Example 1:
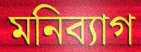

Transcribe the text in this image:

মনিব্যাগ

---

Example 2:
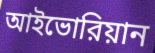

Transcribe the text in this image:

আইভোরিয়ান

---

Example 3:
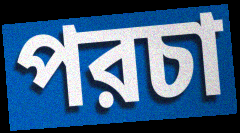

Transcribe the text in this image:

পরচা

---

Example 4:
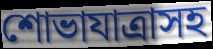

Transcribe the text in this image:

শোভাযাত্রাসহ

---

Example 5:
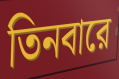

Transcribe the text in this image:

তিনবারে